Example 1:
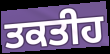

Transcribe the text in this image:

ਤਕਤੀਹ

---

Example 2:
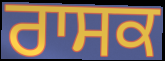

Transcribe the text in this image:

ਰਾਸਕ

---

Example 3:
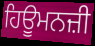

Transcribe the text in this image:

ਹਿਊਮਨਜ਼ੀ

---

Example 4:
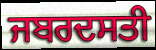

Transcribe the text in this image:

ਜਬਰਦਸਤੀ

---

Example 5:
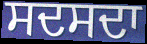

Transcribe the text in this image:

ਸਦਸਦਾ